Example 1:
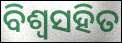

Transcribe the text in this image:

ବିଶ୍ଵସହିତ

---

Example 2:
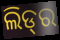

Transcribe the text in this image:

ଲିଡ୍‌ର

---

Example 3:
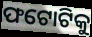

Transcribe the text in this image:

ଫଟୋଟିକୁ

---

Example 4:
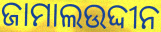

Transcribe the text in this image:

ଜାମାଲଉଦ୍ଦୀନ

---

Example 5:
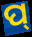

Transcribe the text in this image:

ପ୍